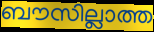
ബൗസില്ലാത്ത